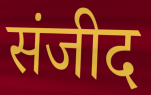
संजीद